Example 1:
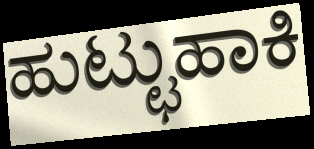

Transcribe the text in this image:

ಹುಟ್ಟುಹಾಕಿ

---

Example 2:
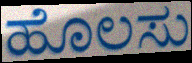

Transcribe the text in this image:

ಹೊಲಸು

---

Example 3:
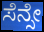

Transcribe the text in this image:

ಸೆನ್ಸೇ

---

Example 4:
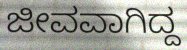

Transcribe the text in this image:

ಜೀವವಾಗಿದ್ದ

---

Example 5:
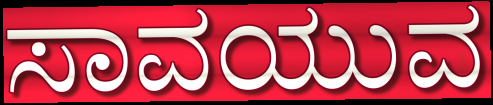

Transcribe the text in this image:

ಸಾವಯುವ